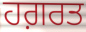
ਹਗ਼ਰਤ